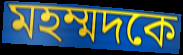
মহম্মদকে